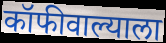
कॉफीवाल्याला